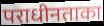
पराधीनताका